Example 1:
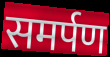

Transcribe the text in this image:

समर्पण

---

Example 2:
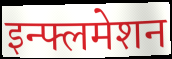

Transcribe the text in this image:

इन्फ्लमेशन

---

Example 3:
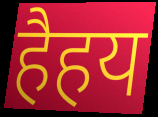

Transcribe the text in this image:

हैहय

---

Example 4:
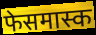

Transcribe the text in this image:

फेसमास्क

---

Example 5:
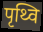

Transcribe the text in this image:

पृथ्वि